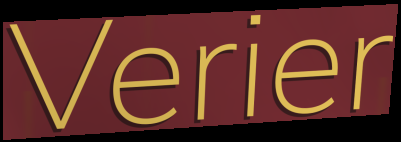
Verier